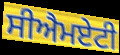
ਸੀਐਮਏਟੀ